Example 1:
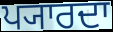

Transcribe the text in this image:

ਪ੍ਯਾਰਦਾ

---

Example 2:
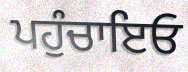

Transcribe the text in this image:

ਪਹੁੰਚਾਇਓ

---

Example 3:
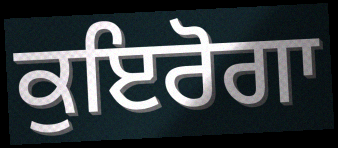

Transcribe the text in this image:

ਕੁਇਰੋਗਾ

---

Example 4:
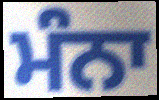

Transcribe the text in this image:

ਮੰਨਾ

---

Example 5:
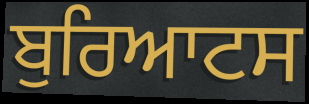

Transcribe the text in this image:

ਬੁਰਿਆਟਸ